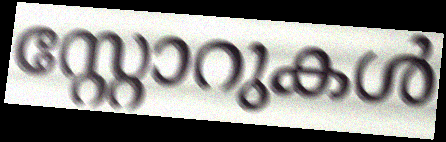
സ്റ്റോറുകൾ